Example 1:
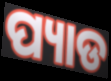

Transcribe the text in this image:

ପ୍ୟାଡ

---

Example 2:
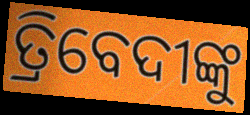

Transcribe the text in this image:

ତ୍ରିବେଦୀଙ୍କୁ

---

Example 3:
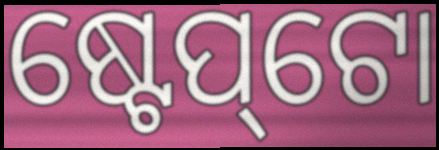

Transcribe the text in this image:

ଷ୍ଟେପ୍‌ଟୋ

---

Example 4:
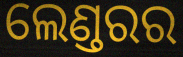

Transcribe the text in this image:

ଲେଣ୍ଡରର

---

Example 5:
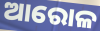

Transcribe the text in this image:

ଆରୋଳ